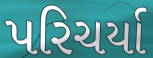
પરિચર્યા